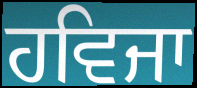
ਹਵਿਜਾ